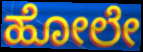
ಹೋಲೇ